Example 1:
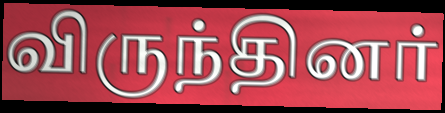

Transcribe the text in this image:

விருந்தினர்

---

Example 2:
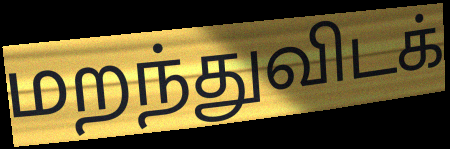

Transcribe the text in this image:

மறந்துவிடக்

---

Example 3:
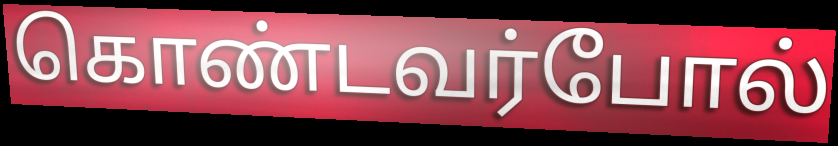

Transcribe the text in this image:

கொண்டவர்போல்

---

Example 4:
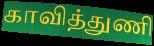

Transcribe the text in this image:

காவித்துணி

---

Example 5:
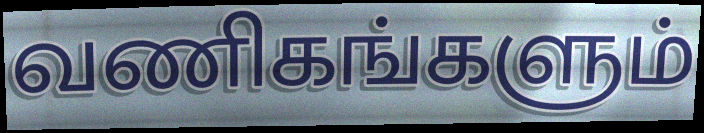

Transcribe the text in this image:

வணிகங்களும்